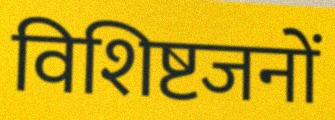
विशिष्टजनों